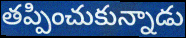
తప్పించుకున్నాడు